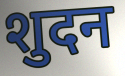
शुदन